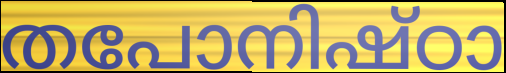
തപോനിഷ്ഠാ